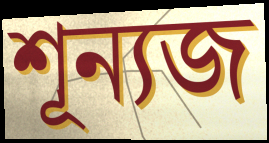
শূন্যজ